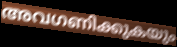
അവഗണിക്കുകയും